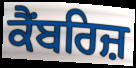
ਕੈਂਬਰਿਜ਼